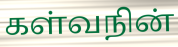
கள்வநின்